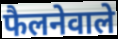
फैलनेवाले